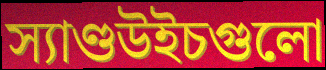
স্যাণ্ডউইচগুলো